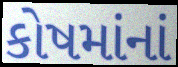
કોષમાંનાં